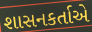
શાસનકર્તાએ